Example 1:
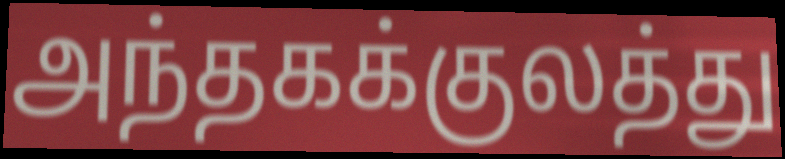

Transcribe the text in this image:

அந்தகக்குலத்து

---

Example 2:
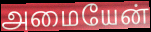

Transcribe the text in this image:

அமையேன்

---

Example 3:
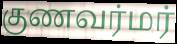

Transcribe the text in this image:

குணவர்மர்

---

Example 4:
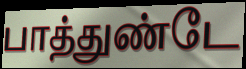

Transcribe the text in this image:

பாத்துண்டே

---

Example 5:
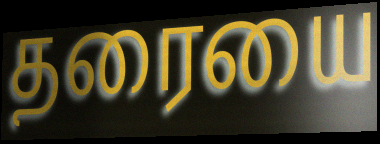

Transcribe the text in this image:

தரையை